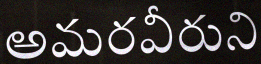
అమరవీరుని